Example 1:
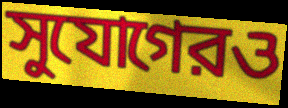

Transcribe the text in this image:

সুযোগেরও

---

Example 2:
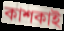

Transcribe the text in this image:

কাশকাই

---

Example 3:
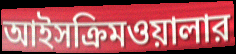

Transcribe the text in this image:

আইসক্রিমওয়ালার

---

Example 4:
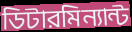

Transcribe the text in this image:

ডিটারমিন্যান্ট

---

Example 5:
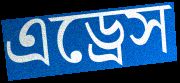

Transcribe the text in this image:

এড্রেস